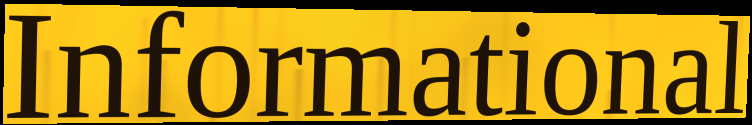
Informational